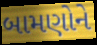
બામણોને